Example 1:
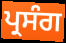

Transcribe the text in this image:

ਪ੍ਰਸੰਗ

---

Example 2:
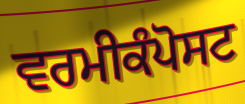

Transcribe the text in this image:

ਵਰਮੀਕੰਪੋਸਟ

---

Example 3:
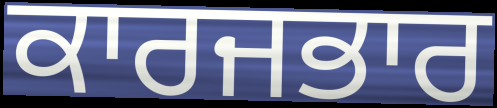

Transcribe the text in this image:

ਕਾਰਜਭਾਰ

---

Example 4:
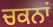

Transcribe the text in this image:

ਚਕਨਾਂ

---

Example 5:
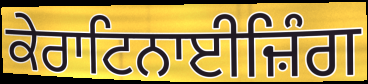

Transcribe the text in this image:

ਕੇਰਾਟਿਨਾਈਜ਼ਿੰਗ